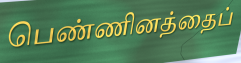
பெண்ணினத்தைப்